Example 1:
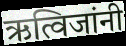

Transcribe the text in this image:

ऋत्विजांनी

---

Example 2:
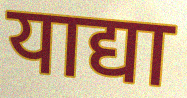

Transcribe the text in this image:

याद्या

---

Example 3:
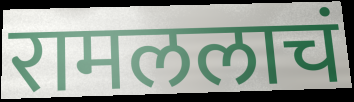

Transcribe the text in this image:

रामललाचं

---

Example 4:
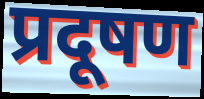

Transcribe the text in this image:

प्रदूषण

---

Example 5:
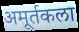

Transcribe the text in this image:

अमूर्तकला